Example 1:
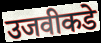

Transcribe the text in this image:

उजवीकडे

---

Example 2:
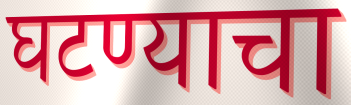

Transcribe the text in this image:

घटण्याचा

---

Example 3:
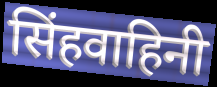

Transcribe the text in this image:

सिंहवाहिनी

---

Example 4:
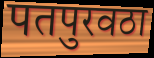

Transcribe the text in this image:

पतपुरवठा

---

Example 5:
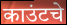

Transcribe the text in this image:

काउंटचे